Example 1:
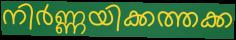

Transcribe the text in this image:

നിർണ്ണയിക്കത്തക്ക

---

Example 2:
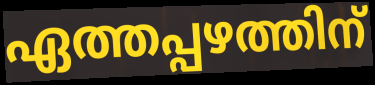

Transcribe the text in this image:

ഏത്തപ്പഴത്തിന്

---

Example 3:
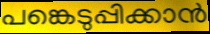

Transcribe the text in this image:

പങ്കെടുപ്പിക്കാൻ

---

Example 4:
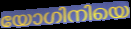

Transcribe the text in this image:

യോഗിനിയെ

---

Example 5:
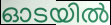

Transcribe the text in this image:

ഓടയിൽ